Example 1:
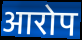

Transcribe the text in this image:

आरोप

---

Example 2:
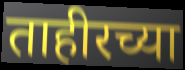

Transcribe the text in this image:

ताहीरच्या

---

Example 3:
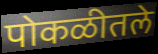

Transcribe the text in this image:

पोकळीतले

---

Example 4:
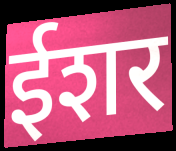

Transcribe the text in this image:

ईशर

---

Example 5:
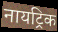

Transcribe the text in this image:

नायट्रिक